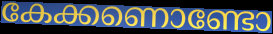
കേക്കണൊണ്ടോ